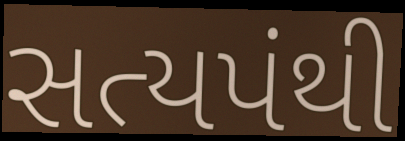
સત્યપંથી